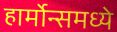
हार्मोन्समध्ये